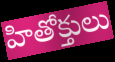
హితోక్తులు